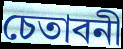
চেতাবনী